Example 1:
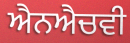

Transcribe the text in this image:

ਐਨਐਚਵੀ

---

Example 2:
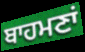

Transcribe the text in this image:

ਬਾਹਮਣਾਂ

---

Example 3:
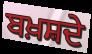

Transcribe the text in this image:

ਬਖ਼ਸ਼ਦੇ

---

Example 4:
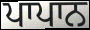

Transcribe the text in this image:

ਪਾਪਾਨ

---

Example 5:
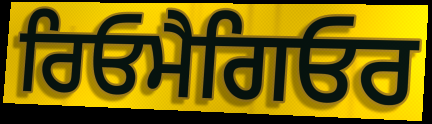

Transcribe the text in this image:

ਰਿਓਮੈਗਿਓਰ